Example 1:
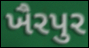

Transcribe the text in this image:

ખૈરપુર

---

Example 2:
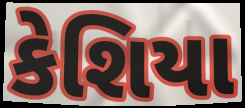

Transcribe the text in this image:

કેશિયા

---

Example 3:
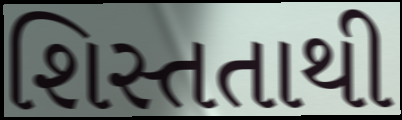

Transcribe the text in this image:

શિસ્તતાથી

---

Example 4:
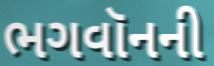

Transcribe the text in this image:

ભગવૉનની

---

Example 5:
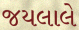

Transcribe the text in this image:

જયલાલે